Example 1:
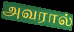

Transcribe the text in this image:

அவரால்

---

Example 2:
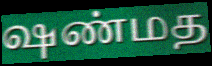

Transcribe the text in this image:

ஷண்மத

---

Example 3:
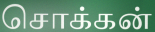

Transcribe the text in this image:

சொக்கன்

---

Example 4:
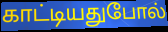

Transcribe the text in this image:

காட்டியதுபோல்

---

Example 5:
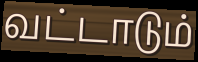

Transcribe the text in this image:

வட்டாடும்